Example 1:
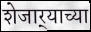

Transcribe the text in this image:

शेजार्याच्या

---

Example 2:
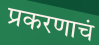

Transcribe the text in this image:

प्रकरणाचं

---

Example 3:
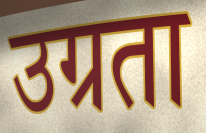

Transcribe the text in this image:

उग्रता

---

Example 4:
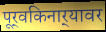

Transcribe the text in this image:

पूर्वकिनार्यावर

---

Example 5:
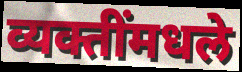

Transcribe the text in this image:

व्यक्तींमधले